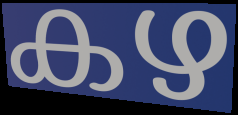
കഴ